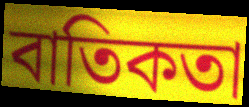
বাতিকতা